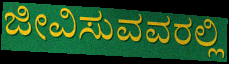
ಜೀವಿಸುವವರಲ್ಲಿ